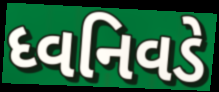
ધ્વનિવડે